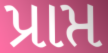
પ્રાપ્ત